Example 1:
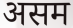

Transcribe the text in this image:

असम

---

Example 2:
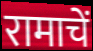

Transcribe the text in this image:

रामाचें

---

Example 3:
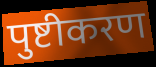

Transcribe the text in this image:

पुष्टीकरण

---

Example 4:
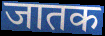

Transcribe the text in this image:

जातक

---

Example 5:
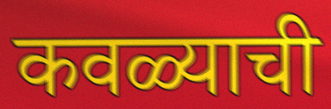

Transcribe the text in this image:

कवळ्याची